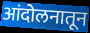
आंदोलनातून